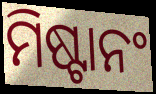
ମିଷ୍ଟାନଂ